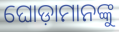
ଘୋଡ଼ାମାନଙ୍କୁ